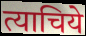
त्याचिये